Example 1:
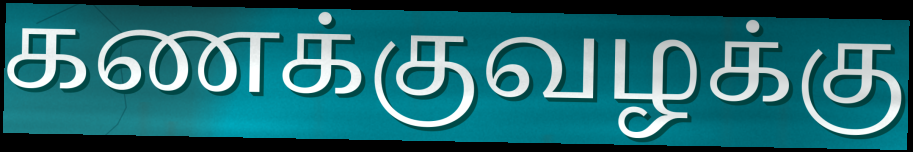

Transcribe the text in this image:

கணக்குவழக்கு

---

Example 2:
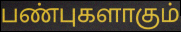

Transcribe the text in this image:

பண்புகளாகும்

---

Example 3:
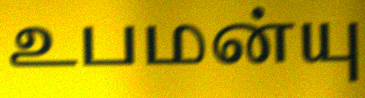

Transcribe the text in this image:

உபமன்யு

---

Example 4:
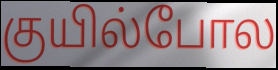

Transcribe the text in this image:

குயில்போல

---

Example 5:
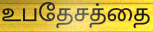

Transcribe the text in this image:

உபதேசத்தை